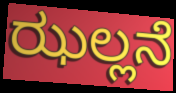
ಝಲ್ಲನೆ